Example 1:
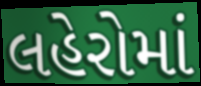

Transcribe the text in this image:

લહેરોમાં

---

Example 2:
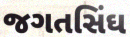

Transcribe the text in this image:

જગતસિંઘ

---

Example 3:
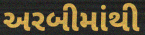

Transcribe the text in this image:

અરબીમાંથી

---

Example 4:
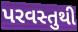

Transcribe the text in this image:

પરવસ્તુથી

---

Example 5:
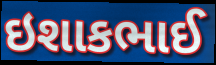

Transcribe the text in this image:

ઇશાકભાઈ